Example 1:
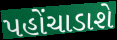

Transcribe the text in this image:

પહોંચાડાશે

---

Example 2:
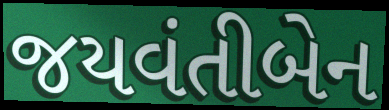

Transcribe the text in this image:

જયવંતીબેન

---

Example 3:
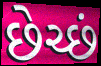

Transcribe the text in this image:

છેચ્છં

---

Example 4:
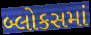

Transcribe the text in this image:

બ્લોકસમાં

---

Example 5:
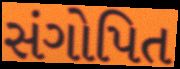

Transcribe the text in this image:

સંગોપિત